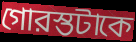
গোরস্তটাকে